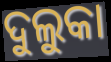
ଦୁଲୁକା